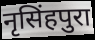
नृसिंहपुरा